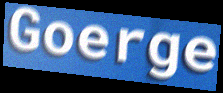
Goerge